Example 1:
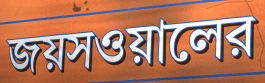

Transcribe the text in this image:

জয়সওয়ালের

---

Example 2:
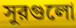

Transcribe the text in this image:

সুরগুলো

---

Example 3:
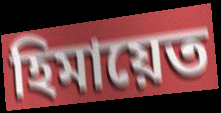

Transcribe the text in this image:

হিমায়েত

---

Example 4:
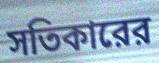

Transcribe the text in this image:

সতিকারের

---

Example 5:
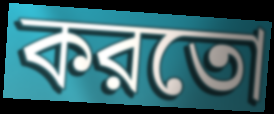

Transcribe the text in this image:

করতো